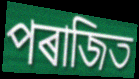
পৰাজিত